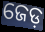
ଜେଡ଼